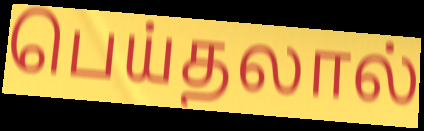
பெய்தலால்